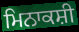
ਮਿਨਾਕਸ਼ੀ